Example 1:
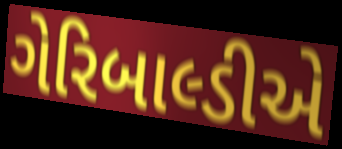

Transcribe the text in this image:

ગેરિબાલ્ડીએ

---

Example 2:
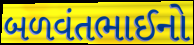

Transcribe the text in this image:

બળવંતભાઈનો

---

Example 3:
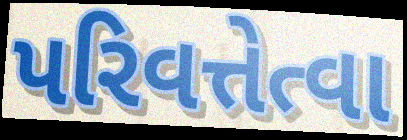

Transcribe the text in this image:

પરિવત્તેત્વા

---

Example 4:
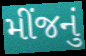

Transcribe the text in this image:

મીંજનું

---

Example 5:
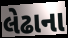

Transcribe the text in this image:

લેઢાના